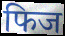
फिज